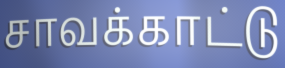
சாவக்காட்டு